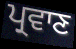
ਪ੍ਰਵਾਣ